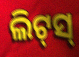
ଲିଟ୍‌ସ୍